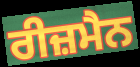
ਰੀਜ਼ਮੈਨ